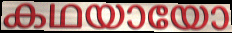
കഥയായോ